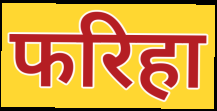
फरिहा